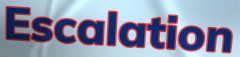
Escalation